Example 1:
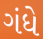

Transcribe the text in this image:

ગંધે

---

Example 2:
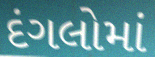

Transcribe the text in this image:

દંગલોમાં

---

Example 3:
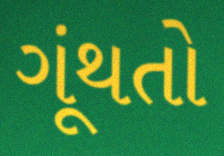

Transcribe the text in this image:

ગૂંથતો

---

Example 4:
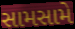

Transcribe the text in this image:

સામસામે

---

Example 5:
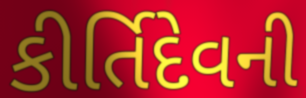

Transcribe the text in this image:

કીર્તિદેવની